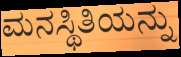
ಮನಸ್ಥಿತಿಯನ್ನು